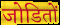
जोडितों